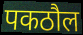
पकठौल